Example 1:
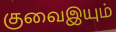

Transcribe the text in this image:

குவைஇயும்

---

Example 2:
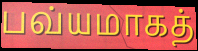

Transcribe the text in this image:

பவ்யமாகத்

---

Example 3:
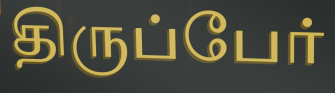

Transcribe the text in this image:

திருப்பேர்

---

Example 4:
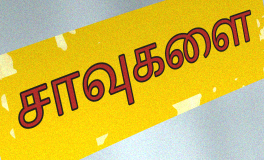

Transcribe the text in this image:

சாவுகளை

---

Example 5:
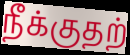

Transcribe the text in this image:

நீக்குதற்